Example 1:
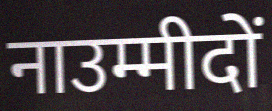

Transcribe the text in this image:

नाउम्मीदों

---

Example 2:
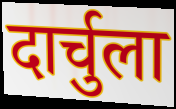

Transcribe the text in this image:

दार्चुला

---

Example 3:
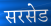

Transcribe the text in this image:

सरसेड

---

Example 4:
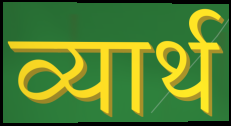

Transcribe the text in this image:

व्यार्थ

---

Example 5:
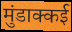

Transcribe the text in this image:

मुंडाक्कई